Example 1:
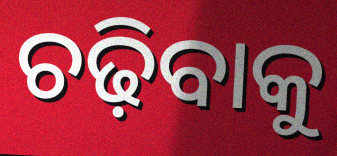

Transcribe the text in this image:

ଚଢ଼ିବାକୁ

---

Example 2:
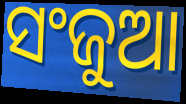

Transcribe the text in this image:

ସଂଜୁଆ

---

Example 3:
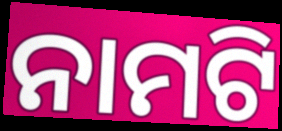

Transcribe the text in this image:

ନାମଟି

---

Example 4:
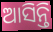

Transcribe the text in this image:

ଆସିନ୍ତି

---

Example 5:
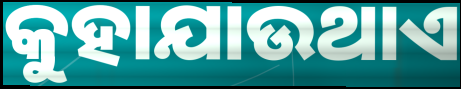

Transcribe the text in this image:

କୁହାଯାଉଥାଏ